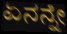
ಏನನ್ನೇ